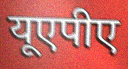
यूएपीए